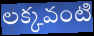
లక్కవంటి